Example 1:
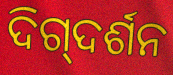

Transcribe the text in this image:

ଦିଗ୍‍ଦର୍ଶନ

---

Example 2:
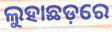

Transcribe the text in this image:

ଲୁହାଛଡ଼ରେ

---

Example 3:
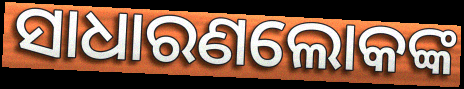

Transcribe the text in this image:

ସାଧାରଣଲୋକଙ୍କ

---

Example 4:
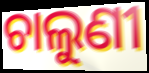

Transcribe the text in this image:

ଚାଲୁଣୀ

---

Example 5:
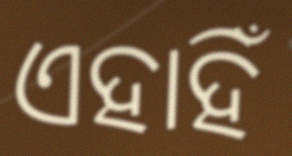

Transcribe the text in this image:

ଏହାହିଁ